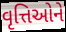
વૃત્તિઓને